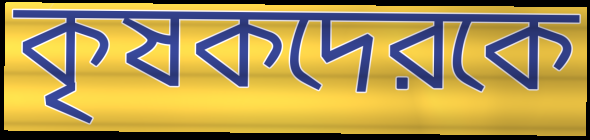
কৃষকদেরকে